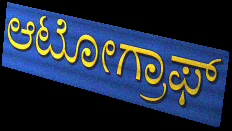
ಆಟೋಗ್ರಾಫ್